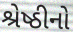
શ્રેષ્ઠીનો